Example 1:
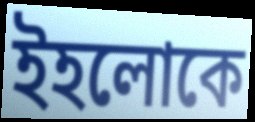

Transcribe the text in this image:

ইহলোকে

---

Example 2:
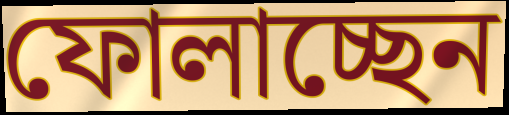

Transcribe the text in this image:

ফোলাচ্ছেন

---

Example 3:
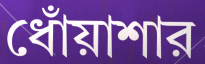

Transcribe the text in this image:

ধোঁয়াশার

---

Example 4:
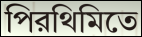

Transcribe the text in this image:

পিরথিমিতে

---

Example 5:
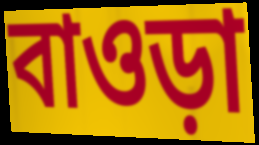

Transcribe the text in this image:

বাওড়া